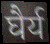
घैर्य